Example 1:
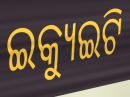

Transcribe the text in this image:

ଇକ୍ୟୁଇଟି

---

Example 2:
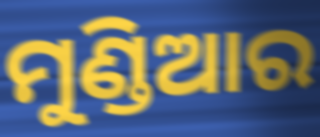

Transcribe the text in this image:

ମୁଣ୍ଡିଆର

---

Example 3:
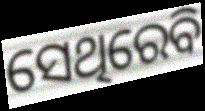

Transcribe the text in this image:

ସେଥିରେବି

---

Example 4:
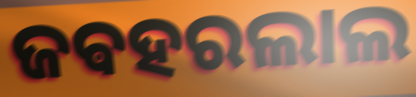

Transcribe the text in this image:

ଜଵହରଲାଲ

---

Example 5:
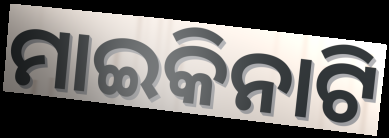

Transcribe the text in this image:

ମାଇକିନାଟି